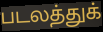
படலத்துக்